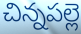
చిన్నపల్లె